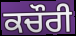
ਕਚੌਰੀ